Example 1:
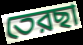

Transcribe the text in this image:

তেরছা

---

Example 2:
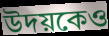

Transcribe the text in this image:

উদয়কেও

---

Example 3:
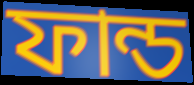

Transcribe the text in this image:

ফান্ড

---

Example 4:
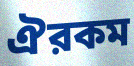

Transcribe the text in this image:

ঐরকম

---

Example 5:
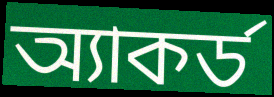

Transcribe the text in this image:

অ্যাকর্ড